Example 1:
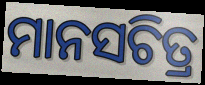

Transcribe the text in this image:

ମାନସଚିତ୍ର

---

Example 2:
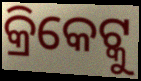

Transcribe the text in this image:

କ୍ରିକେଟ୍କୁ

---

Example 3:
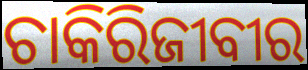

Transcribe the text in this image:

ଚାକିରିଜୀବୀର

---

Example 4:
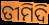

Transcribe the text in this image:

ତୀମିଦି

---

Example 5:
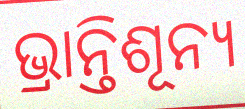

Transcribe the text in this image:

ଭ୍ରାନ୍ତିଶୂନ୍ୟ